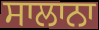
ਸਾਲਾਨਾ